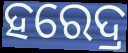
ହରେଦ୍ର